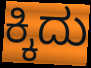
ಕ್ಕಿದು